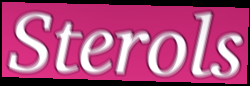
Sterols